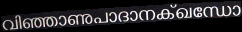
വിഞ്ഞാണുപാദാനക്ഖന്ധോ